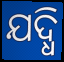
ଯଦ୍ଧି